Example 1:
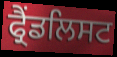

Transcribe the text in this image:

ਫ੍ਰੈਂਡਲਿਸਟ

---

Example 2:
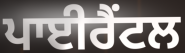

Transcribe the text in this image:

ਪਾਈਰੈਂਟਲ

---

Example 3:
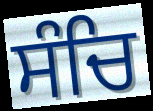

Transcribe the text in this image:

ਸੰਚਿ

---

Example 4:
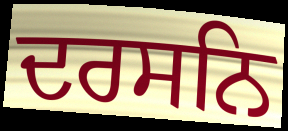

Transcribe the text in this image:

ਦਰਸਨਿ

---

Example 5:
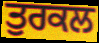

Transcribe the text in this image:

ਤੁਰਕਲ